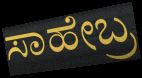
ಸಾಹೇಬ್ರ